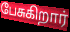
பேசுகிறார்